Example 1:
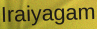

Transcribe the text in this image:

Iraiyagam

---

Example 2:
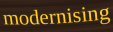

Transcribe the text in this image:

modernising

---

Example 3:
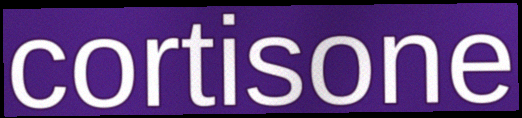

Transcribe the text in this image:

cortisone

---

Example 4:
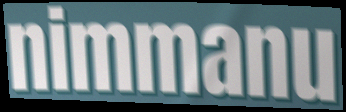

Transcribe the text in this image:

nimmanu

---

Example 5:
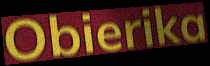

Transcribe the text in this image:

Obierika